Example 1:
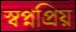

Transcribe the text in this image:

স্বপ্নপ্রিয়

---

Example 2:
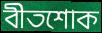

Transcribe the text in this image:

বীতশোক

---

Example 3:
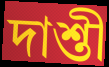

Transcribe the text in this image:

দাশ্তী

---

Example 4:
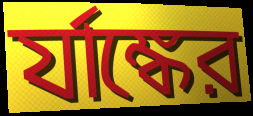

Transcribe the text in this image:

র্যাঙ্কের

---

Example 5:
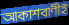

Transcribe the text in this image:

আকাশবাণীই